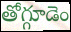
తోగ్గూడెం